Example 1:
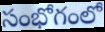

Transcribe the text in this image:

సంభోగంలో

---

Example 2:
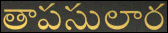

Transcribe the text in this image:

తాపసులార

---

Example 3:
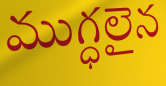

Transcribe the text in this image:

ముగ్ధలైన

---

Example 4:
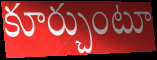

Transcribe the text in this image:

కూర్చుంటూ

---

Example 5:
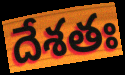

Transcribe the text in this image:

దేశతః